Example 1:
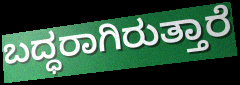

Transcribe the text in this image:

ಬದ್ಧರಾಗಿರುತ್ತಾರೆ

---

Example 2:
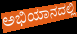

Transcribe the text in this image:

ಅಭಿಯಾನದಲ್ಲಿ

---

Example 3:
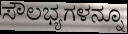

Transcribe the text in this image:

ಸೌಲಭ್ಯಗಳನ್ನೂ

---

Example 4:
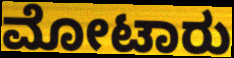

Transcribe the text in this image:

ಮೋಟಾರು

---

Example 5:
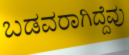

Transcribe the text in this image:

ಬಡವರಾಗಿದ್ದೆವು